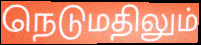
நெடுமதிலும்